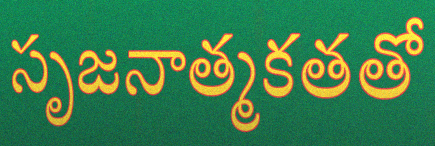
సృజనాత్మకతతో